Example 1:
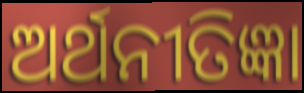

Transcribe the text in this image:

ଅର୍ଥନୀତିଜ୍ଞା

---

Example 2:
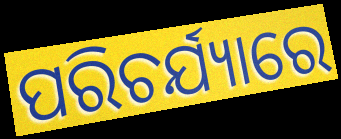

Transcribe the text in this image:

ପରିଚର୍ଯ୍ୟାରେ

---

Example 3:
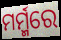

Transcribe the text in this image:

ମର୍ମ୍ମରେ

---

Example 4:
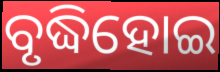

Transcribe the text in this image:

ବୃଦ୍ଧିହୋଇ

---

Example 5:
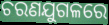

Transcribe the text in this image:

ଚରଣଯୁଗଳରେ